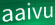
aaivu